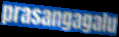
prasangagalu